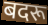
बदरू